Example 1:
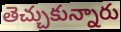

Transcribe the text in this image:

తెచ్చుకున్నారు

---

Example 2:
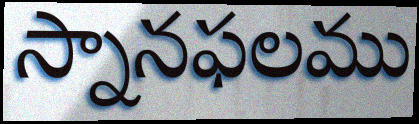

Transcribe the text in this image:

స్నానఫలము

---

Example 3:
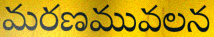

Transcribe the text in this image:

మరణమువలన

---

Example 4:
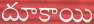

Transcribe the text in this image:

దూకాయి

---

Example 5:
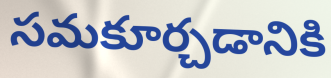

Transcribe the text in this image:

సమకూర్చడానికి